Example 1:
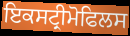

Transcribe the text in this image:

ਇਕਸਟ੍ਰੀਮੋਫਿਲਸ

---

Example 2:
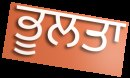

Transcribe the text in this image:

ਭੂਲਤਾ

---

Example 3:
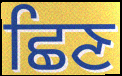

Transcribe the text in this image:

ਛਿਣ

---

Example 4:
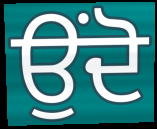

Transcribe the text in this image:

ਉਂਦੋ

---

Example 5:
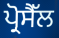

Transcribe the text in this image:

ਪ੍ਰੋਸੈੱਲ